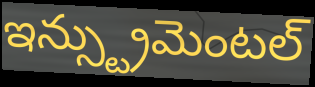
ఇన్స్ట్రుమెంటల్